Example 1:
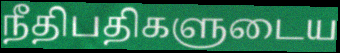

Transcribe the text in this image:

நீதிபதிகளுடைய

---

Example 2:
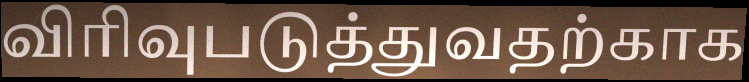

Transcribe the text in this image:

விரிவுபடுத்துவதற்காக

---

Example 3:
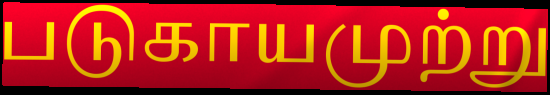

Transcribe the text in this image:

படுகாயமுற்று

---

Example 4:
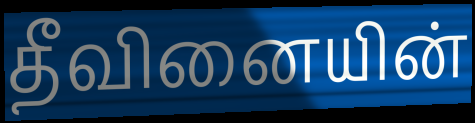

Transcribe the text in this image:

தீவினையின்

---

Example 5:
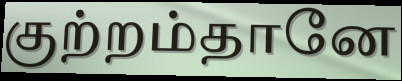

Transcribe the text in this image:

குற்றம்தானே